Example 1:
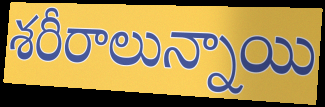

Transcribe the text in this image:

శరీరాలున్నాయి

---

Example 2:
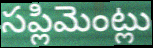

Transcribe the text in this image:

సప్లిమెంట్లు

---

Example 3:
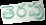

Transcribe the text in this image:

తెరపు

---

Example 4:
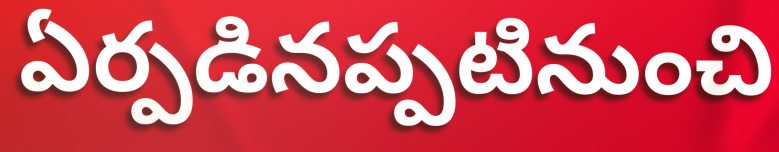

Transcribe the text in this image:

ఏర్పడినప్పటినుంచి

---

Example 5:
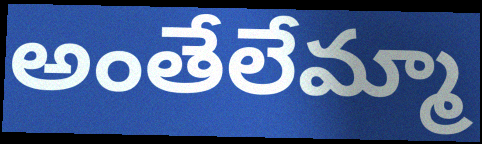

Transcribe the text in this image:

అంతేలేమ్మా